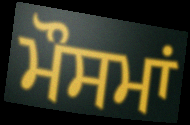
ਮੌਸਮਾਂ